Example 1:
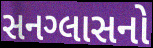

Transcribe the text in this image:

સનગ્લાસનો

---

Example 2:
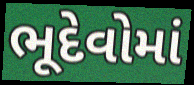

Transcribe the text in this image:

ભૂદેવોમાં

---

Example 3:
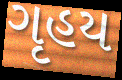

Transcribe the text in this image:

ગૃહય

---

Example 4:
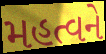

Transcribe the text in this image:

મહત્વને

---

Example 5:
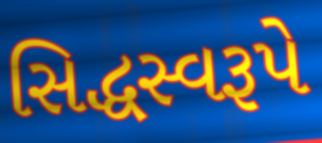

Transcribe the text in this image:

સિદ્ધસ્વરૂપે